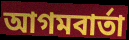
আগমবার্তা